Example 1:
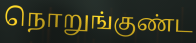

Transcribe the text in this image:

நொறுங்குண்ட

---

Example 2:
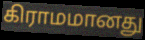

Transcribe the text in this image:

கிராமமானது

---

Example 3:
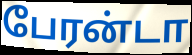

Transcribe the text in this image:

பேரன்டா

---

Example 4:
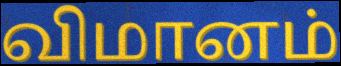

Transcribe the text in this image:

விமானம்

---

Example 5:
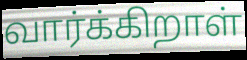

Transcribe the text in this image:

வார்க்கிறாள்